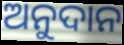
ଅନୁଦାନ